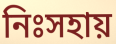
নিঃসহায়